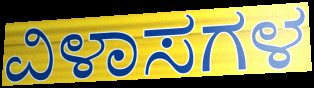
ವಿಳಾಸಗಳ